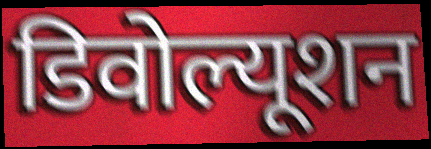
डिवोल्यूशन